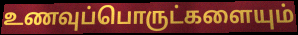
உணவுப்பொருட்களையும்